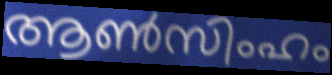
ആൺസിംഹം